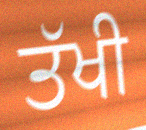
ਤੱਖੀ